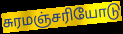
சுரமஞ்சரியோடு